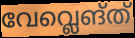
വേവ്ലെങ്ത്